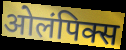
ओलंपिक्स